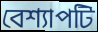
বেশ্যাপটি